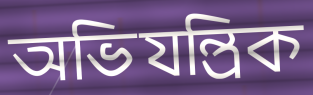
অভিযন্ত্ৰিক